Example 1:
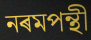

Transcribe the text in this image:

নৰমপন্থী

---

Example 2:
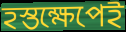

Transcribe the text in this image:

হস্তক্ষেপেই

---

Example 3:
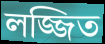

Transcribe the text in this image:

লজ্জিত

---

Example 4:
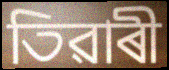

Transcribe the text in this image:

তিৱাৰী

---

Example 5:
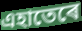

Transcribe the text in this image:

এহাতেৰে